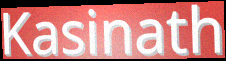
Kasinath